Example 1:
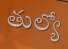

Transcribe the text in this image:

తుల్యో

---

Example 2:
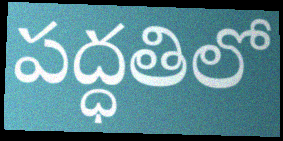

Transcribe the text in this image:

పద్ధతిలో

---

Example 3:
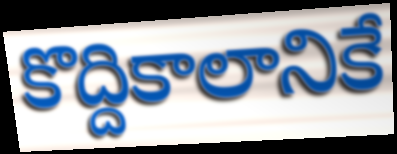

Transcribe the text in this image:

కొద్దికాలానికే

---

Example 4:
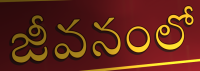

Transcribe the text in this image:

జీవనంలో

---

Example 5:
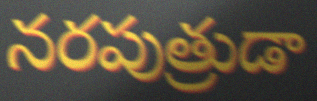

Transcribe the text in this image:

నరపుత్రుడా